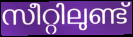
സീറ്റിലുണ്ട്